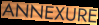
ANNEXURE